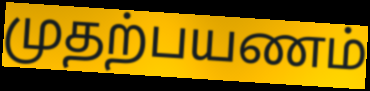
முதற்பயணம்